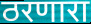
ठरणारा